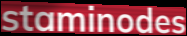
staminodes